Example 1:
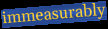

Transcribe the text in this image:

immeasurably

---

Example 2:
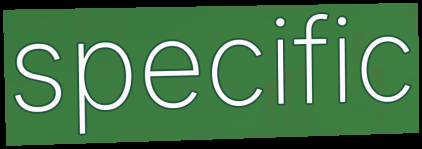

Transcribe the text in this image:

specific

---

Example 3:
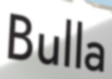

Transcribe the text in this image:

Bulla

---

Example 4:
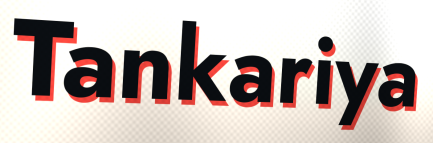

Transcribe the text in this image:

Tankariya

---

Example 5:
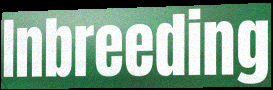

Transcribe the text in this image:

Inbreeding